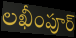
లఖీంపూర్